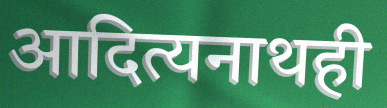
आदित्यनाथही